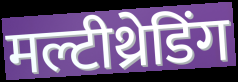
मल्टीथ्रेडिंग